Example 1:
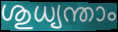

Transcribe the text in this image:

ശുധ്യന്താം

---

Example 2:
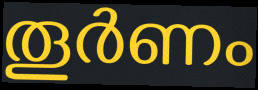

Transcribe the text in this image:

തൂർണം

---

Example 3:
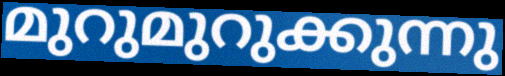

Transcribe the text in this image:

മുറുമുറുക്കുന്നു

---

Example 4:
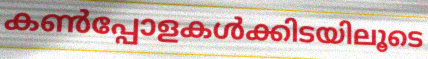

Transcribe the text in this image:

കൺപ്പോളകൾക്കിടയിലൂടെ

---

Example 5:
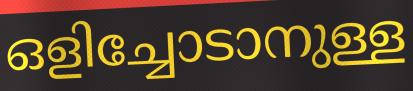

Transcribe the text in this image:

ഒളിച്ചോടാനുള്ള